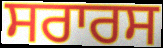
ਸਰਾਰਸ